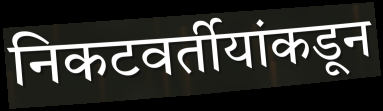
निकटवर्तीयांकडून